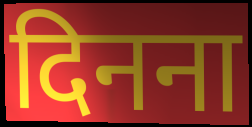
दिनना